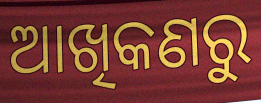
ଆଖିକଣରୁ